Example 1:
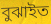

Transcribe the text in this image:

বুঝাইত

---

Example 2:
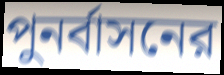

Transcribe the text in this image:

পুনর্বাসনের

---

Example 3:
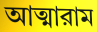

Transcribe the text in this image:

আত্মারাম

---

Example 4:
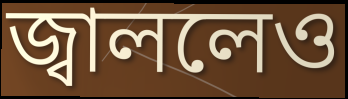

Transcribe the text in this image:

জ্বাললেও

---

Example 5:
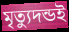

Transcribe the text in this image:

মৃত্যুদন্ডই